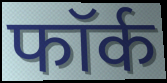
फॉर्क